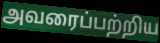
அவரைப்பற்றிய